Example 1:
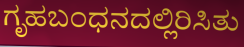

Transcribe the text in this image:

ಗೃಹಬಂಧನದಲ್ಲಿರಿಸಿತು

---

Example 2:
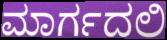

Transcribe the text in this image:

ಮಾರ್ಗದಲಿ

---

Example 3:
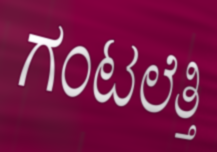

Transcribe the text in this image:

ಗಂಟಲೆತ್ತಿ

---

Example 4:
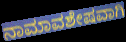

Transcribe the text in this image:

ನಾಮಾವಶೇಷವಾಗಿ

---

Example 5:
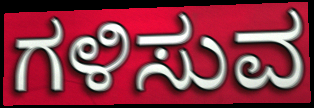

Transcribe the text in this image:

ಗಳಿಸುವ